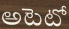
అటెటో